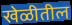
खेळीतील